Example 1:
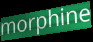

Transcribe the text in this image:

morphine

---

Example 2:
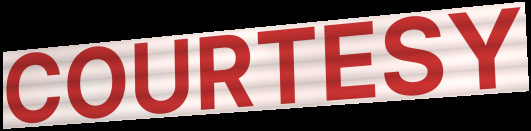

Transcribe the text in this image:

COURTESY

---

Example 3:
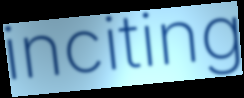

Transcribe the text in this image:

inciting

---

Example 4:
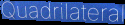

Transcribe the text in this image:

Quadrilateral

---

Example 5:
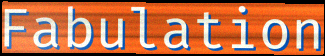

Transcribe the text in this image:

Fabulation